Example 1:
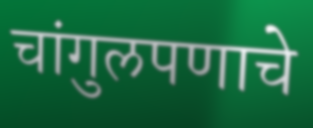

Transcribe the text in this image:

चांगुलपणाचे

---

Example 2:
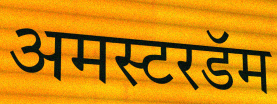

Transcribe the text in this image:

अमस्टरडॅम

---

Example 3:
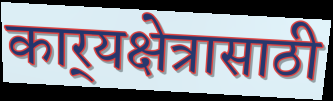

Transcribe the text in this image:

कार्यक्षेत्रासाठी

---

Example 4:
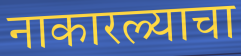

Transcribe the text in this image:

नाकारल्याचा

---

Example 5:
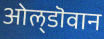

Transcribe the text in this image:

ओल्डॊवान